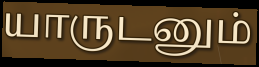
யாருடனும்